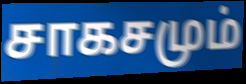
சாகசமும்